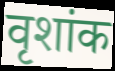
वृशांक